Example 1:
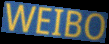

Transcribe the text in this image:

WEIBO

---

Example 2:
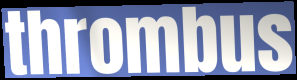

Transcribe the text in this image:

thrombus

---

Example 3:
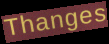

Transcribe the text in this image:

Thanges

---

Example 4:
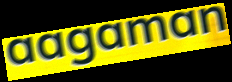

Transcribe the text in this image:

aagaman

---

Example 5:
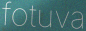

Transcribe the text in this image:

fotuva